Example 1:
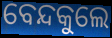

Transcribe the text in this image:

ବେନ୍ଦକୁଲେ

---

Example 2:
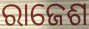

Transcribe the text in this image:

ରାଜେଶ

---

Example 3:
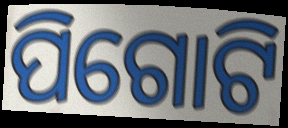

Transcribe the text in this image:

ପିଗୋଟି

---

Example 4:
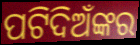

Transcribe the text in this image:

ପଟିଦିଅଁଙ୍କର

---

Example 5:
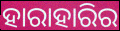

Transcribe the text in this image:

ହାରାହାରିର